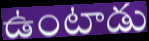
ఉంటాడు